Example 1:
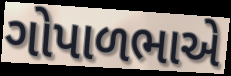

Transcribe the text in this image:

ગોપાળભાએ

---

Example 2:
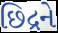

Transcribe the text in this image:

છિદ્રને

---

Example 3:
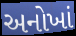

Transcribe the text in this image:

અનોખાં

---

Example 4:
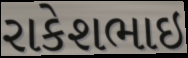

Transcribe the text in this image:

રાકેશભાઇ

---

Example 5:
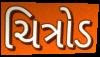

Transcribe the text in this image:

ચિત્રોડ